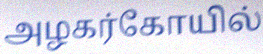
அழகர்கோயில்